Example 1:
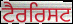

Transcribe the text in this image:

ਟੈਰਰਿਸਟ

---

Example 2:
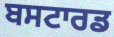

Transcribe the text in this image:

ਬਸਟਾਰਡ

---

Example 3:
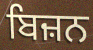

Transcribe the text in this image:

ਬਿਜ਼ਨ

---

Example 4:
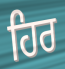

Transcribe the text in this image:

ਹਿਰ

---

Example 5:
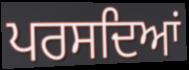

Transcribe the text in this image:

ਪਰਸਦਿਆਂ